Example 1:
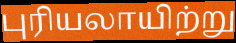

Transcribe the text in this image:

புரியலாயிற்று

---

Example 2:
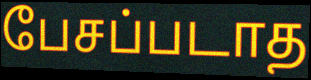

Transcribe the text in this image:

பேசப்படாத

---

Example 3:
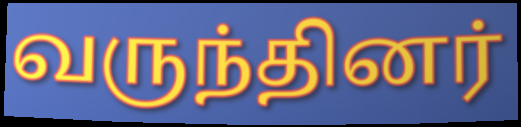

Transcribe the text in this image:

வருந்தினர்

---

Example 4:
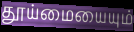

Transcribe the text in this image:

தூய்மையையும்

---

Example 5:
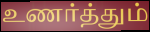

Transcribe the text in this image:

உணர்த்தும்